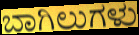
ಬಾಗಿಲುಗಳು